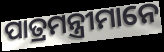
ପାତ୍ରମନ୍ତ୍ରୀମାନେ